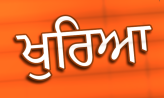
ਖੁਰਿਆ